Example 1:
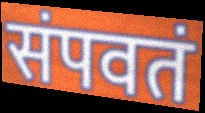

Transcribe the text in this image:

संपवतं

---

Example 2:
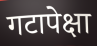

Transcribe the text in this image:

गटापेक्षा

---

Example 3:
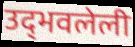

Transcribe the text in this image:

उद्‌भवलेली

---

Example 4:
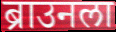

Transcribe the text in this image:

ब्राउनला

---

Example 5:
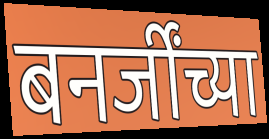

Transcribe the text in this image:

बनर्जींच्या